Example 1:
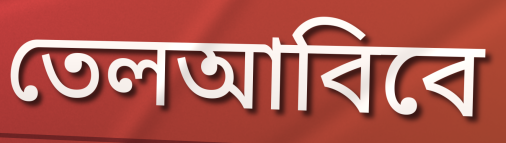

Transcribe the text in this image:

তেলআবিবে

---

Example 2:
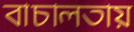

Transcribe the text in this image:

বাচালতায়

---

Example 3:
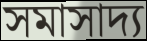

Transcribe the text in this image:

সমাসাদ্য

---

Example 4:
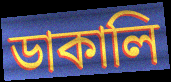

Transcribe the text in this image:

ডাকালি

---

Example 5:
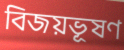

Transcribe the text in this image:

বিজয়ভূষণ